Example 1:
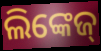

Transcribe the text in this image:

ଲିଙ୍କେଜ୍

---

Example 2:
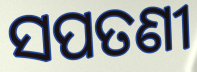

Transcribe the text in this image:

ସପତଣୀ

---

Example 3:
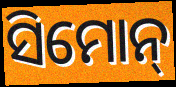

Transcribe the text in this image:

ସିମୋନ୍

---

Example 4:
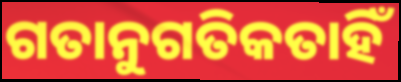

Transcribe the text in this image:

ଗତାନୁଗତିକତାହିଁ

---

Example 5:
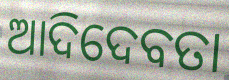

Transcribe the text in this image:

ଆଦିଦେବତା